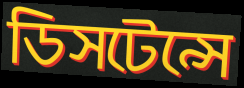
ডিসটেন্সে